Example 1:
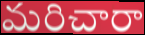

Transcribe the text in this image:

మరిచారా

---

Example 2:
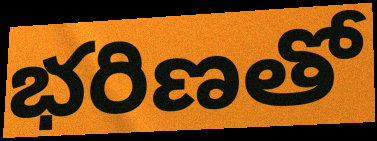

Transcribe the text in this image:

భరిణతో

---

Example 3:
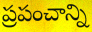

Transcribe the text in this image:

ప్రపంచాన్ని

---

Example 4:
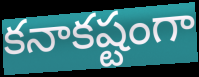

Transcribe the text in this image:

కనాకష్టంగా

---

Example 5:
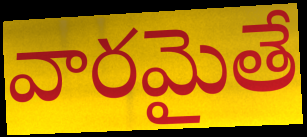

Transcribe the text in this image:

వారమైతే